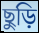
ছুড়ি